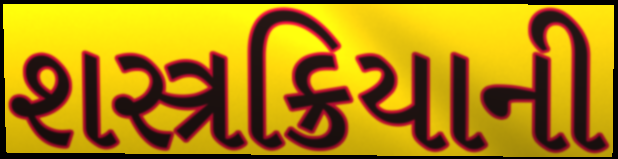
શસ્ત્રક્રિયાની